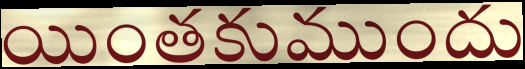
యింతకుముందు